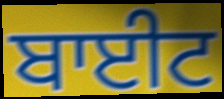
ਬਾਈਟ